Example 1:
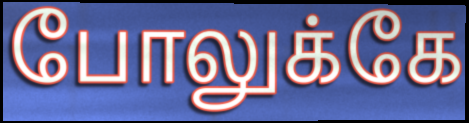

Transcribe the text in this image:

போலுக்கே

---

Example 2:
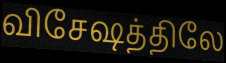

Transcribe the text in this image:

விசேஷத்திலே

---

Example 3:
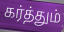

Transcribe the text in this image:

கர்த்தும்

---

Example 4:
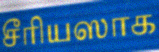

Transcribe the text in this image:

சீரியஸாக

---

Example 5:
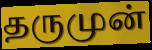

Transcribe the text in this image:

தருமுன்